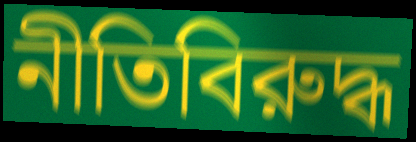
নীতিবিরুদ্ধ